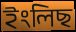
ইংলিছ